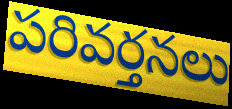
పరివర్తనలు